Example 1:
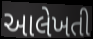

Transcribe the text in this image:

આલેખતી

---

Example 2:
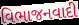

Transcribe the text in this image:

વિભાજનવાદી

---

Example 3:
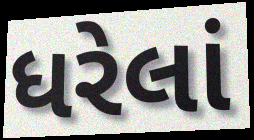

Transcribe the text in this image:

ધરેલાં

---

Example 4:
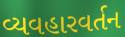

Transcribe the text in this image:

વ્યવહારવર્તન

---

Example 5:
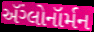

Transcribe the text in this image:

ઍંગ્લોનૉર્મન